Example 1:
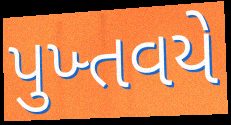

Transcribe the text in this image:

પુખ્તવયે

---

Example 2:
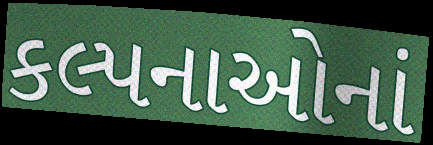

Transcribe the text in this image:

કલ્પનાઓનાં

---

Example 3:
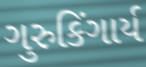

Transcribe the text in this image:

ગુરુકિંગાર્ય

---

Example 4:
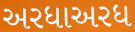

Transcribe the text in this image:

અરધાઅરધ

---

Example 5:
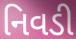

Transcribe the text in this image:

નિવડી